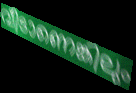
വീടാണെങ്കിലും